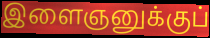
இளைஞனுக்குப்